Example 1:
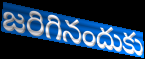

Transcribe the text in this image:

జరిగినందుకు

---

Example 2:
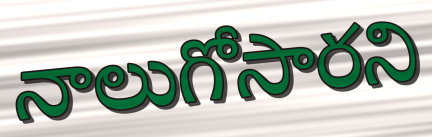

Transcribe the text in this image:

నాలుగోసారని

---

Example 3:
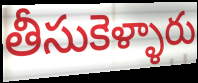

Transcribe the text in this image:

తీసుకెళ్ళారు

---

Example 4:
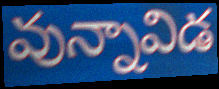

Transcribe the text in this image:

వున్నావిడ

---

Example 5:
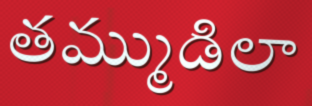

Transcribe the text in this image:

తమ్ముడిలా